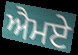
ਐਮਏ